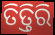
ତିତ୍ତିରି